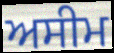
ਅਸੀਮ